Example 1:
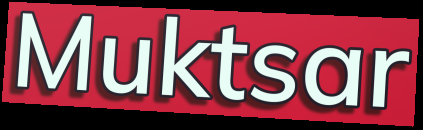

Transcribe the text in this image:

Muktsar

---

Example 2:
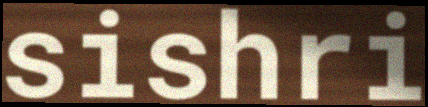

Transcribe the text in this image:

sishri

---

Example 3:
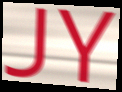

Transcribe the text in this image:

JY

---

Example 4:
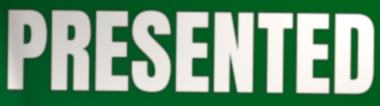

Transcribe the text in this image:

PRESENTED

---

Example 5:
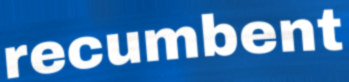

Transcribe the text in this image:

recumbent